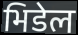
भिडेल